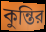
কুন্তির